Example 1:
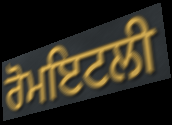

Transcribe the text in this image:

ਰੋਮਇਟਲੀ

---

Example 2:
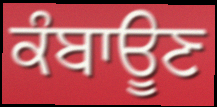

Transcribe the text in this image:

ਕੰਬਾਊਣ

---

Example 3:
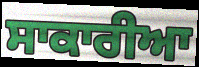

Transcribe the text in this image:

ਸਾਕਾਰੀਆ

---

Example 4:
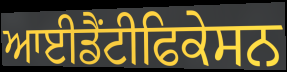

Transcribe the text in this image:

ਆਈਡੈਂਟੀਫਿਕੇਸਨ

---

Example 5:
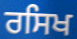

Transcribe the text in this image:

ਰਸਿਖ